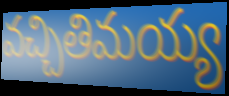
వచ్చితిమయ్య